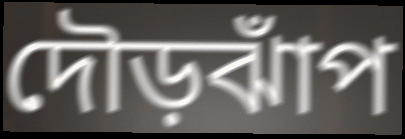
দৌড়ঝাঁপ